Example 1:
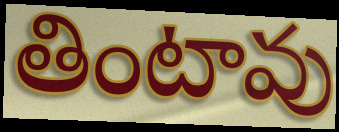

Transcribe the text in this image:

తింటావు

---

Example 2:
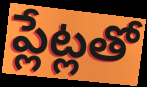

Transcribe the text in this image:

ప్లేట్లతో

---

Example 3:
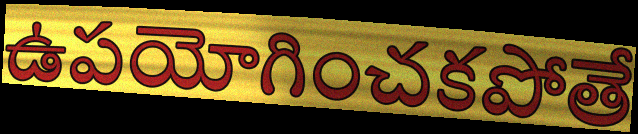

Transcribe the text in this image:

ఉపయోగించకపోతే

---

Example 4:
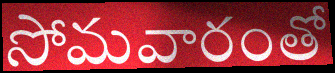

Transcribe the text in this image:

సోమవారంతో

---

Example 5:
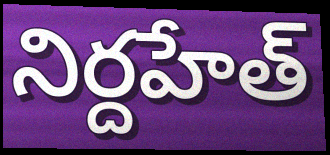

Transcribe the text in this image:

నిర్దహేత్